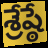
శ్రేష్ఠే